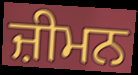
ਜ਼ੀਮਨ